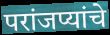
परांजप्यांचे